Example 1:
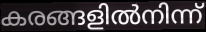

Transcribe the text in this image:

കരങ്ങളിൽനിന്ന്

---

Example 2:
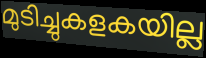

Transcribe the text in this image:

മുടിച്ചുകളകയില്ല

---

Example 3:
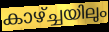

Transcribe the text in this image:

കാഴ്ച്ചയിലും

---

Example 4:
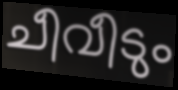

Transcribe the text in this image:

ചീവീടും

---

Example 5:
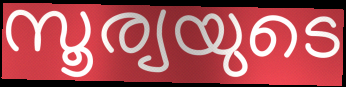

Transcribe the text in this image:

സൂര്യയുടെ